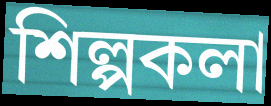
শিল্পকলা